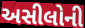
અસીલોની